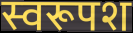
स्वरूपश